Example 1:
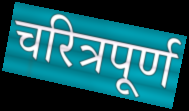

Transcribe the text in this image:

चरित्रपूर्ण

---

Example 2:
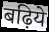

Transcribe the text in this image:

बढ़िये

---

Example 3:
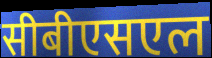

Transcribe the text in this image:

सीबीएसएल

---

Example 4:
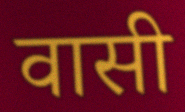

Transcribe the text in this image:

वासी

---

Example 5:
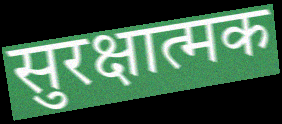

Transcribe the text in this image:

सुरक्षात्मक